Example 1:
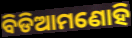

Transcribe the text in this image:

ବିଡିଆମଣୋହି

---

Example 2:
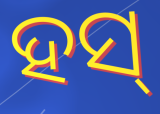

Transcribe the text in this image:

ହସ୍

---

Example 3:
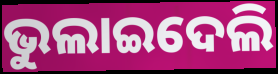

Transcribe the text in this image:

ଭୁଲାଇଦେଲି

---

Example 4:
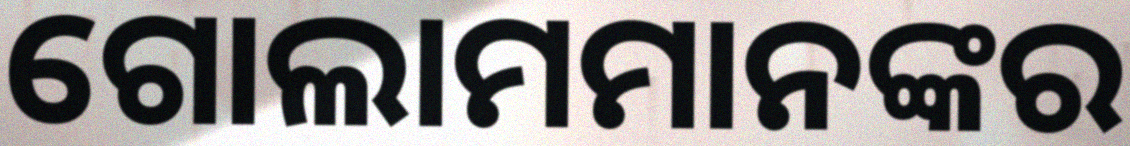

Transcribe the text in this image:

ଗୋଲାମମାନଙ୍କର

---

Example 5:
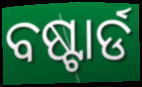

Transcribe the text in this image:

ବଷ୍ଟାର୍ଡ